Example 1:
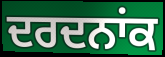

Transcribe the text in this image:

ਦਰਦਨਾਂਕ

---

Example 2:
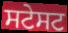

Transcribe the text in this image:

ਸਟੇਸਟ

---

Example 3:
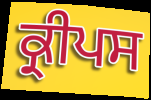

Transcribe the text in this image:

ਕ੍ਰੀਪਸ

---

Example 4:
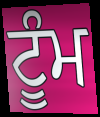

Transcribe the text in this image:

ਟੂੰਮ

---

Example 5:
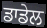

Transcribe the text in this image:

ਡਾਡੇਲ